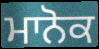
ਮਾਨੋਕ